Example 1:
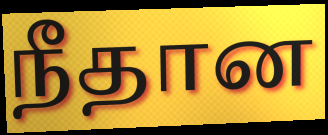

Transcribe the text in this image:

நீதான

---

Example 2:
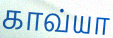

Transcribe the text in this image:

காவ்யா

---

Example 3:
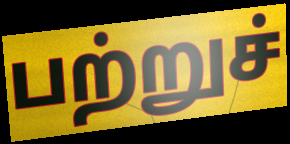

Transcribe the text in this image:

பற்றுச்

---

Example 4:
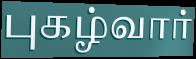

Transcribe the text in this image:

புகழ்வார்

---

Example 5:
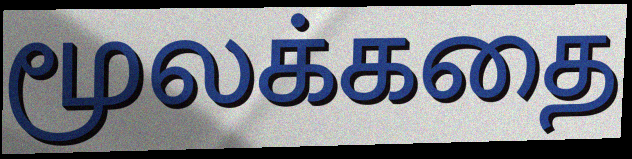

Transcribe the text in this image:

மூலக்கதை